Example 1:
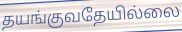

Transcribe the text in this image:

தயங்குவதேயில்லை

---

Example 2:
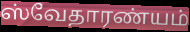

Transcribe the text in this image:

ஸ்வேதாரண்யம்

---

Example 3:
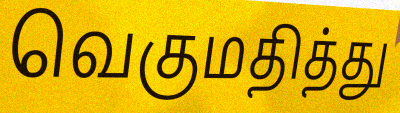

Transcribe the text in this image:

வெகுமதித்து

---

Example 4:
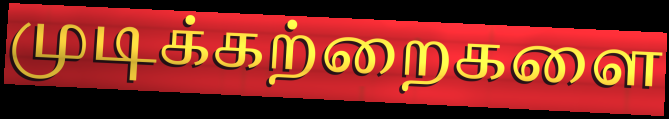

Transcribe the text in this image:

முடிக்கற்றைகளை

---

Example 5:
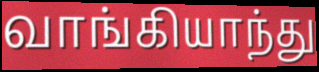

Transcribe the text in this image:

வாங்கியாந்து